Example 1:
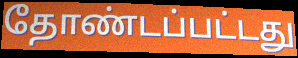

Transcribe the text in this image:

தோண்டப்பட்டது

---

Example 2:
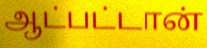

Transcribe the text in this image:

ஆட்பட்டான்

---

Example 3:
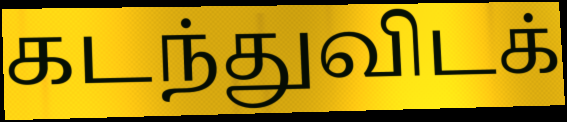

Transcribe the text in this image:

கடந்துவிடக்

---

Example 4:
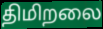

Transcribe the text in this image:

திமிறலை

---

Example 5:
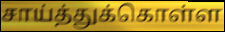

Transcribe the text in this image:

சாய்த்துக்கொள்ள